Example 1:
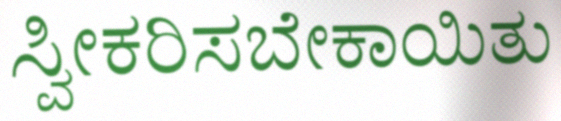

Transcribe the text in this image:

ಸ್ವೀಕರಿಸಬೇಕಾಯಿತು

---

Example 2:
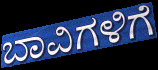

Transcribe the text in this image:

ಬಾವಿಗಳಿಗೆ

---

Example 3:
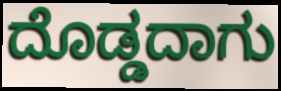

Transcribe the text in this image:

ದೊಡ್ಡದಾಗು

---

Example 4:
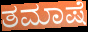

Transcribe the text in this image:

ತಮಾಷೆ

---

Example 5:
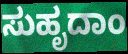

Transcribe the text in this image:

ಸುಹೃದಾಂ